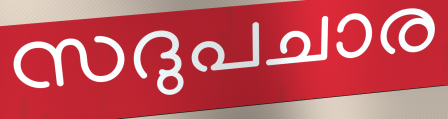
സദുപചാര